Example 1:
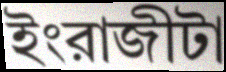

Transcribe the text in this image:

ইংরাজীটা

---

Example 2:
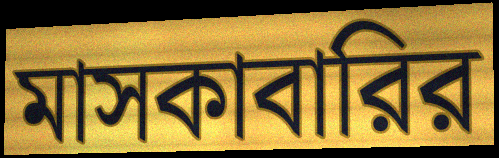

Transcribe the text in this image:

মাসকাবারির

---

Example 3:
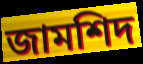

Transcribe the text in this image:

জামশিদ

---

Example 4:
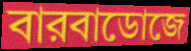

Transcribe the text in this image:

বারবাডোজে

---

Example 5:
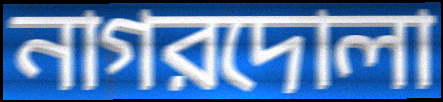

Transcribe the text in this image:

নাগরদোলা